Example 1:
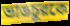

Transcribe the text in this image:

ভাঙচুরকে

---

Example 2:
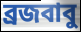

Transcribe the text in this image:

ব্রজবাবু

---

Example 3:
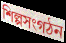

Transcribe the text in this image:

শিল্পসংগঠন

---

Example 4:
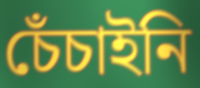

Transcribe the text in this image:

চেঁচাইনি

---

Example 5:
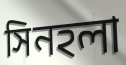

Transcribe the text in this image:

সিনহলা